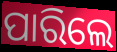
ପାରିଲେ